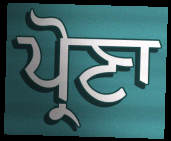
ਪ੍ਰੋਣਾ